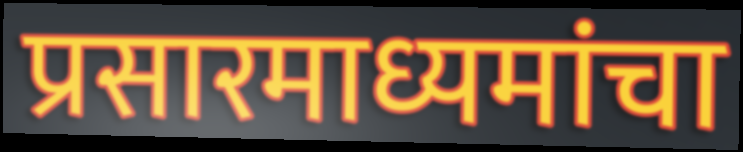
प्रसारमाध्यमांचा